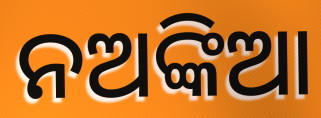
ନଅଙ୍କିଆ